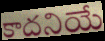
కాదనియే